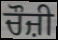
ਚੌਜ਼ੀ